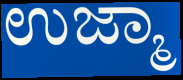
ಉಜ್ಮಾ